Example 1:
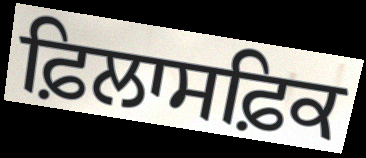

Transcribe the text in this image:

ਫ਼ਿਲਾਸਫ਼ਿਕ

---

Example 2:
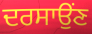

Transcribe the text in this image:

ਦਰਸਾਉਂਣ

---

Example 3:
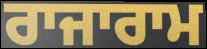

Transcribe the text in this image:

ਰਾਜਾਰਾਮ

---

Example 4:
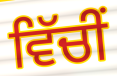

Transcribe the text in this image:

ਵਿੱਚੀਂ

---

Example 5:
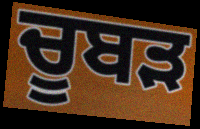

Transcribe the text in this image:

ਚੂਬੜ